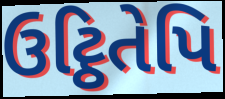
ઉટ્ઠિતેપિ